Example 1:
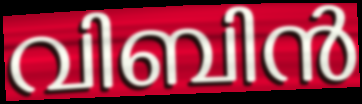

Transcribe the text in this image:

വിബിൻ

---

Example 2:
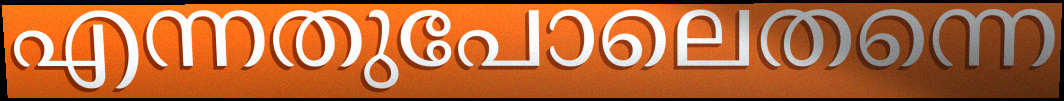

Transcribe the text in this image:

എന്നതുപോലെതന്നെ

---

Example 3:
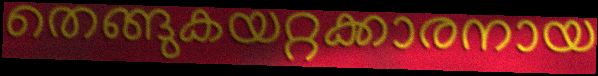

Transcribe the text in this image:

തെങ്ങുകയറ്റക്കാരനായ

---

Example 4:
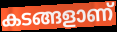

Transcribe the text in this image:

കടങ്ങളാണ്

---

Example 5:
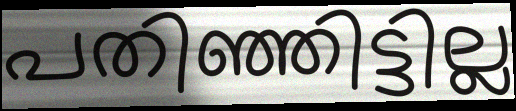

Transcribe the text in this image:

പതിഞ്ഞിട്ടില്ല